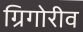
ग्रिगोरीव